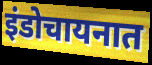
इंडोचायनात